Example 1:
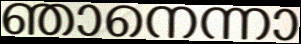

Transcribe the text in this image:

ഞാനെന്നാ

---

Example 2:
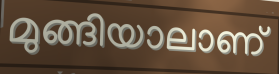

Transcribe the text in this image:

മുങ്ങിയാലാണ്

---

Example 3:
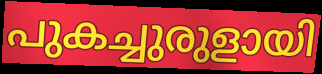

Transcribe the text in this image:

പുകച്ചുരുളായി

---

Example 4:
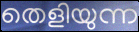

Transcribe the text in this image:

തെളിയുന്ന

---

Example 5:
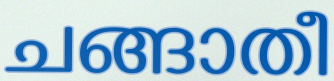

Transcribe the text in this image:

ചങ്ങാതീ